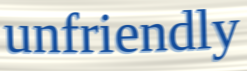
unfriendly